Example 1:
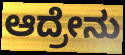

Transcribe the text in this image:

ಆದ್ರೇನು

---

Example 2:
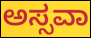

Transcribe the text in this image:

ಅಸ್ಸವಾ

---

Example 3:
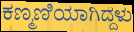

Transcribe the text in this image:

ಕಣ್ಮಣಿಯಾಗಿದ್ದಳು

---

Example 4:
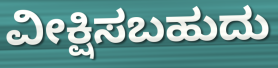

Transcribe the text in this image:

ವೀಕ್ಷಿಸಬಹುದು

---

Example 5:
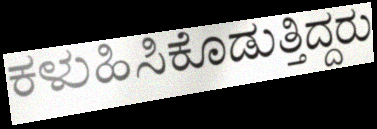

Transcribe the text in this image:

ಕಳುಹಿಸಿಕೊಡುತ್ತಿದ್ದರು